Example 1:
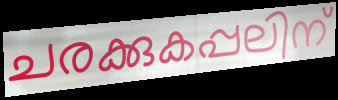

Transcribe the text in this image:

ചരക്കുകപ്പലിന്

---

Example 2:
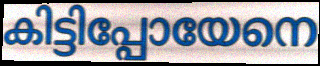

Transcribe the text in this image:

കിട്ടിപ്പോയേനെ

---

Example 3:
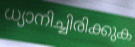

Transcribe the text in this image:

ധ്യാനിച്ചിരിക്കുക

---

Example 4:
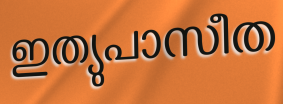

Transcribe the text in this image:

ഇത്യുപാസീത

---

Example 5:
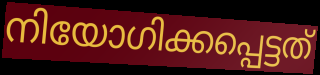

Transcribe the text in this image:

നിയോഗിക്കപ്പെട്ടത്